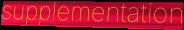
supplementation